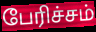
பேரிச்சம்